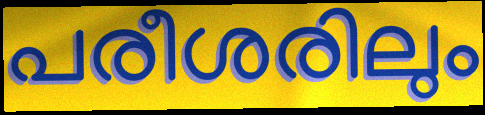
പരീശരിലും